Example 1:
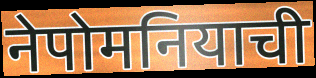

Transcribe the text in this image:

नेपोमनियाची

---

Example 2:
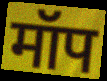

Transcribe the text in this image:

मॉप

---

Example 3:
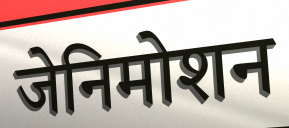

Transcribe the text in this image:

जेनिमोशन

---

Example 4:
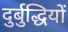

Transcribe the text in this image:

दुर्बुद्धियों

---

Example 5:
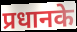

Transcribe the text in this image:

प्रधानके